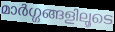
മാർഗ്ഗങ്ങളിലൂടെ